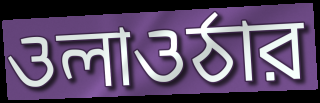
ওলাওঠার